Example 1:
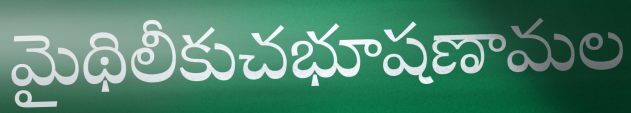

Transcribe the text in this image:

మైథిలీకుచభూషణామల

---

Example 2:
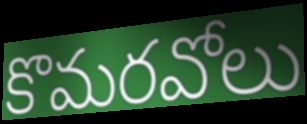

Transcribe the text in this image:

కొమరవోలు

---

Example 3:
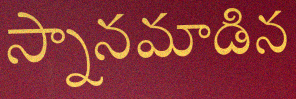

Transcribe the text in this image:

స్నానమాడిన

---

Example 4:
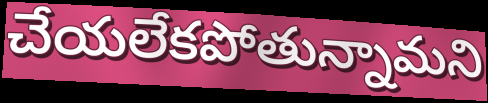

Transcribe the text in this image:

చేయలేకపోతున్నామని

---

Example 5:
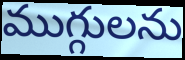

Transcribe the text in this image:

ముగ్గులను